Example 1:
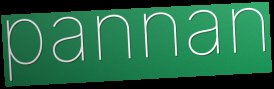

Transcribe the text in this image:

pannan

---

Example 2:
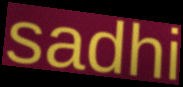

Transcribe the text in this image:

sadhi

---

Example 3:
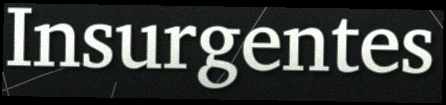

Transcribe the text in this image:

Insurgentes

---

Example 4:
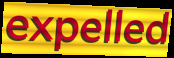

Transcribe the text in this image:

expelled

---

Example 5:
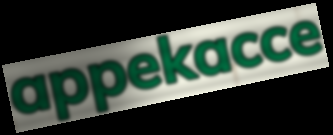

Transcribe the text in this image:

appekacce